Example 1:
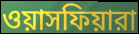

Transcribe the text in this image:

ওয়াসফিয়ারা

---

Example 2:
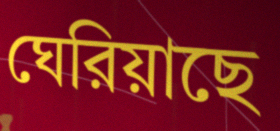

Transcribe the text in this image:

ঘেরিয়াছে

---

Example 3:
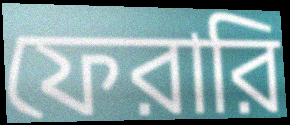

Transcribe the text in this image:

ফেরারি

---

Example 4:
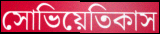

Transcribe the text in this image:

সোভিয়েতিকাস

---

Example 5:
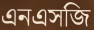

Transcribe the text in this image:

এনএসজি